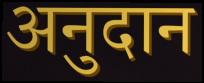
अनुदान